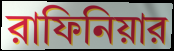
রাফিনিয়ার